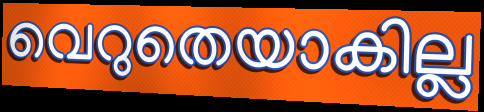
വെറുതെയാകില്ല